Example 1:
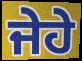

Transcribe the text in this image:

ਜੇਹੇ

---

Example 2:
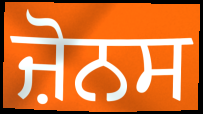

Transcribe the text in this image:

ਜ਼ੋਨਸ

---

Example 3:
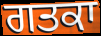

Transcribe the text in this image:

ਗਤਕਾ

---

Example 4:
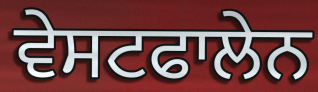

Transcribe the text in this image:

ਵੇਸਟਫਾਲੇਨ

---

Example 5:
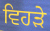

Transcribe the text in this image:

ਵਿਹੜੇ